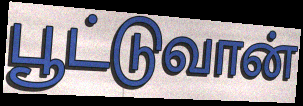
பூட்டுவான்